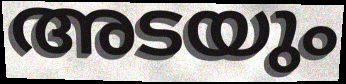
അടയും